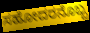
ಸಹೋದರನೊಬ್ಬ